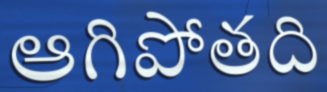
ఆగిపోతది